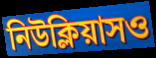
নিউক্লিয়াসও